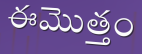
ఈమొత్తం